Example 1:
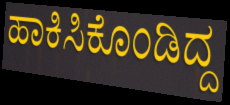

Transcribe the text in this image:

ಹಾಕಿಸಿಕೊಂಡಿದ್ದ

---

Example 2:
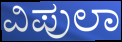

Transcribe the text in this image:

ವಿಪುಲಾ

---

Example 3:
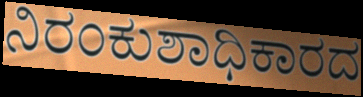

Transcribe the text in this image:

ನಿರಂಕುಶಾಧಿಕಾರದ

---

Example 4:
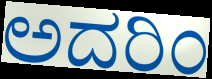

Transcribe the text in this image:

ಅದರಿಂ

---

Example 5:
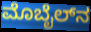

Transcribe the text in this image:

ಮೊಬೈಲ್‌ನ